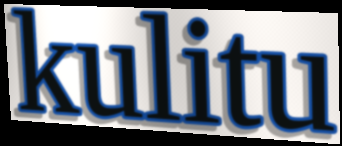
kulitu